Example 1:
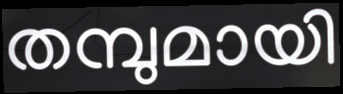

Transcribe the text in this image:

തമ്പുമായി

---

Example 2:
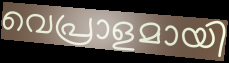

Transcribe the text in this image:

വെപ്രാളമായി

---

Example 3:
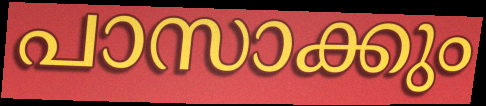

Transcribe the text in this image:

പാസാക്കും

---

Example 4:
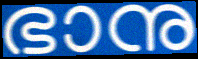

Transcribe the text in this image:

ഭാനു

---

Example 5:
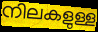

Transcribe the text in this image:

നിലകളുള്ള